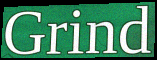
Grind